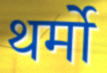
थर्मो